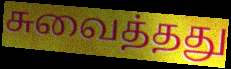
சுவைத்தது